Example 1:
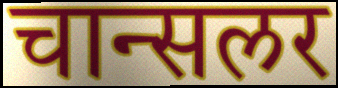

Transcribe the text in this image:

चान्सलर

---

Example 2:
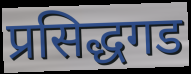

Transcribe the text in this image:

प्रसिद्धगड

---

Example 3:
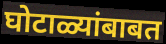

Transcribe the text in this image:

घोटाळ्यांबाबत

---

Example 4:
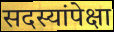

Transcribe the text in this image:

सदस्यांपेक्षा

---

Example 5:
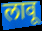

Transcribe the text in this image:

लावू